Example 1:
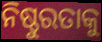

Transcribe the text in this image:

ନିଷ୍ଠୁରତାକୁ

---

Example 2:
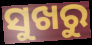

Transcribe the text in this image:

ସୁଖରୁ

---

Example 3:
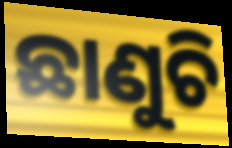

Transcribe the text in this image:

ଛାଣୁଚି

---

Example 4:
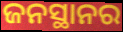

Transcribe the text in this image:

ଜନସ୍ଥାନର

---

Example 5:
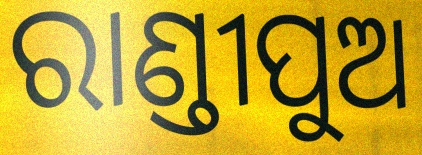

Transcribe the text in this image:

ରାଣ୍ଡୀପୁଅ